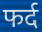
फर्द